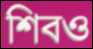
শিবও